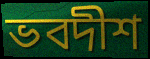
ভবদীশ